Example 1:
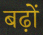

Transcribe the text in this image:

बढ़ों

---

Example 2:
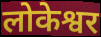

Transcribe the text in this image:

लोकेश्वर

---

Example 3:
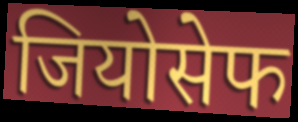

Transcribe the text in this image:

जियोसेफ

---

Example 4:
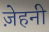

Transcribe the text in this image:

ज़ेहनी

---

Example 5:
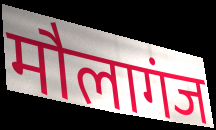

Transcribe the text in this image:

मौलागंज